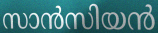
സാൻസിയൻ